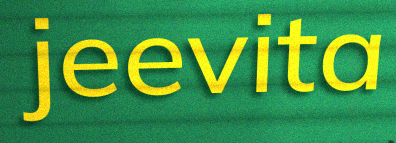
jeevita